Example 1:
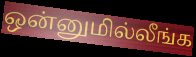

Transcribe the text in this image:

ஒன்னுமில்லீங்க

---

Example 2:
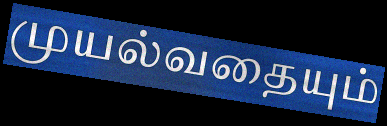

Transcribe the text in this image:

முயல்வதையும்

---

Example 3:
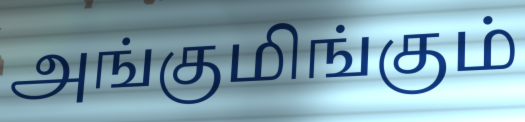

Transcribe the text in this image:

அங்குமிங்கும்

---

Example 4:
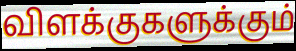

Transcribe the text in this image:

விளக்குகளுக்கும்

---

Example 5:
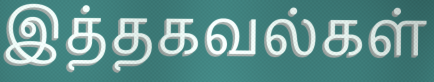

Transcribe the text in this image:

இத்தகவல்கள்